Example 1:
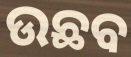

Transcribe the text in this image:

ଉଛବ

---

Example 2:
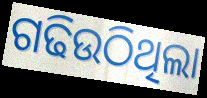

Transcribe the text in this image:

ଗଢିଉଠିଥିଲା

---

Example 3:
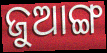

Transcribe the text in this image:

ଜୁଆଙ୍ଗ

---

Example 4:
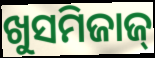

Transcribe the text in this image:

ଖୁସମିଜାଜ୍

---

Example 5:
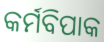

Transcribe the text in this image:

କର୍ମବିପାକ